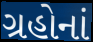
ગ્રહોનાં